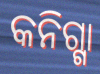
କନିଗ୍ଗା